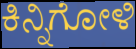
ಕಿನ್ನಿಗೋಳಿ